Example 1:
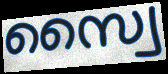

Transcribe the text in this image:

സ്വൈ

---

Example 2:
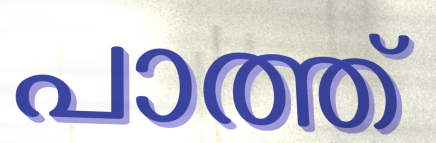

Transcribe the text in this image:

പാത്ത്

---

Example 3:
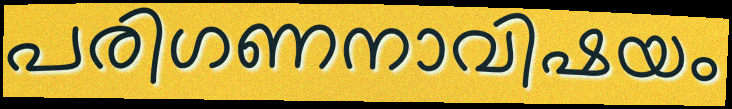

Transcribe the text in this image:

പരിഗണനാവിഷയം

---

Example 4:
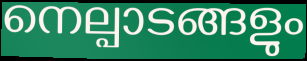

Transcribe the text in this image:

നെല്പാടങ്ങളും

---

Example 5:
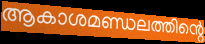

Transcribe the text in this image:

ആകാശമണ്ഡലത്തിന്റെ